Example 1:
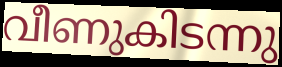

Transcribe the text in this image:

വീണുകിടന്നു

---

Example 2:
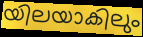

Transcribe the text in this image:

യിലയാകിലും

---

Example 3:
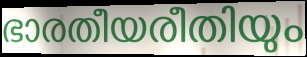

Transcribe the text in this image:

ഭാരതീയരീതിയും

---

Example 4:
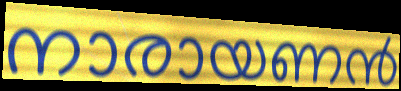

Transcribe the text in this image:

നാരായണൻ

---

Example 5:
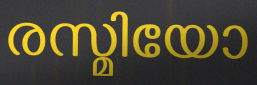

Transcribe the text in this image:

രസ്മിയോ